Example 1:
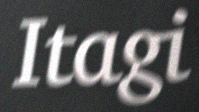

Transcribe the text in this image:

Itagi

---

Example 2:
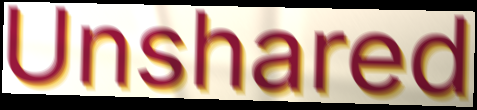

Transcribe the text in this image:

Unshared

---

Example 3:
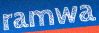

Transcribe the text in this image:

ramwa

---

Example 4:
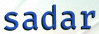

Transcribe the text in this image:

sadar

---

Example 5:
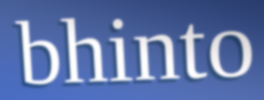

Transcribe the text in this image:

bhinto